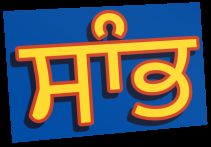
ਸਾੰਭ